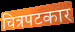
चित्रपटकार